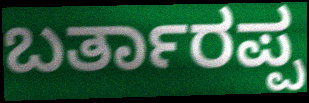
ಬರ್ತಾರಪ್ಪ